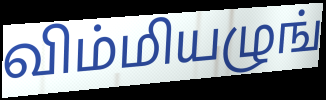
விம்மியழுங்